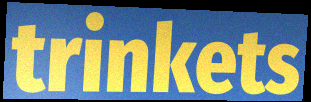
trinkets